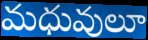
మధువులూ